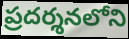
ప్రదర్శనలోని